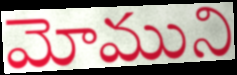
మోముని